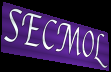
SECMOL